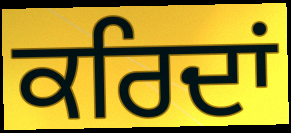
ਕਰਿਦਾਂ